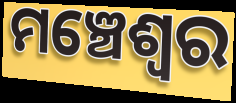
ମଞ୍ଚେଶ୍ଵର